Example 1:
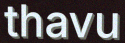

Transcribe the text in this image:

thavu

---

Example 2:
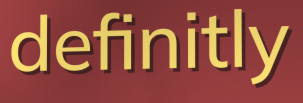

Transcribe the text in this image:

definitly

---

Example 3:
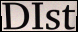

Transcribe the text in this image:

DIst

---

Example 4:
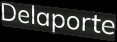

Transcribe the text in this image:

Delaporte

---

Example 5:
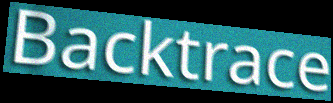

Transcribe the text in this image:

Backtrace